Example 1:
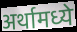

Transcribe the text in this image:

अर्थामध्ये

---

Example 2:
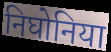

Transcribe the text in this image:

निघोनिया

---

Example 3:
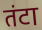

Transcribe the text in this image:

तंटा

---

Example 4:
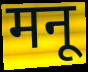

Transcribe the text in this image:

मनू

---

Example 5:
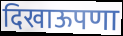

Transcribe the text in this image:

दिखाऊपणा